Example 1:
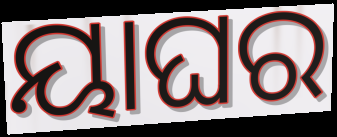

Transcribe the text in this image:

ୟାଘର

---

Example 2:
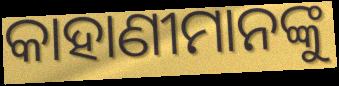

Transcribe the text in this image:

କାହାଣୀମାନଙ୍କୁ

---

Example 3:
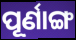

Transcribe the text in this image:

ପୂର୍ଣାଙ୍ଗ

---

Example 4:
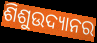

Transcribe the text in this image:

ଶିଶୁଉଦ୍ୟାନର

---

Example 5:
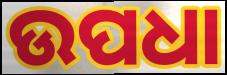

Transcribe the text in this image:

ଉପଧା